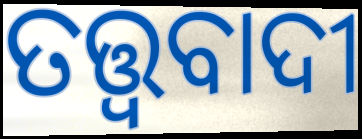
ତତ୍ତ୍ଵବାଦୀ